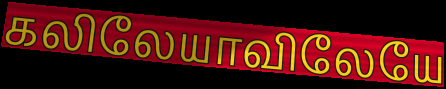
கலிலேயாவிலேயே